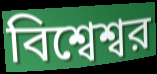
বিশ্বেশ্বর